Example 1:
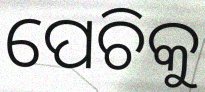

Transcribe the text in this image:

ପେଚିକୁ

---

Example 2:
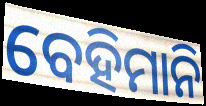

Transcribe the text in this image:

ବେହିମାନି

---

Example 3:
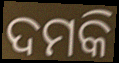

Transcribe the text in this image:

ଦମକି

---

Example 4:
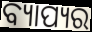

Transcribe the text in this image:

ବ୍ୟାପ୍ୟର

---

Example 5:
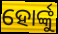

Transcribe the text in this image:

ହୋର୍ଙ୍କୁ